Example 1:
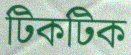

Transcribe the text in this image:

টিকটিক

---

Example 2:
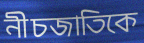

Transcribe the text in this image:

নীচজাতিকে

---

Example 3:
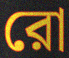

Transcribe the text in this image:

রো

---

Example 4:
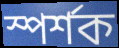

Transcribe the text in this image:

স্পর্শক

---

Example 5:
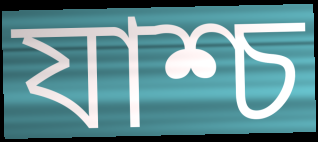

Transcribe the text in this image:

যাশ্চ